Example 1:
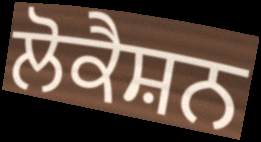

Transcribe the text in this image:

ਲੋਕੈਸ਼ਨ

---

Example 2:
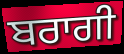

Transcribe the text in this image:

ਬਰਾਗੀ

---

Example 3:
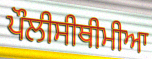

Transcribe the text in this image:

ਪੌਲੀਸੀਥੀਮੀਆ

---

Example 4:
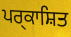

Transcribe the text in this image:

ਪਰ੍ਕਾਸ਼ਿਤ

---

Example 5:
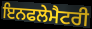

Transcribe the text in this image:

ਇਨਫਲੇਮੈਟਰੀ